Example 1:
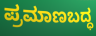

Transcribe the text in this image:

ಪ್ರಮಾಣಬದ್ಧ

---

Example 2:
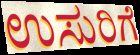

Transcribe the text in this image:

ಉಸುರಿಗೆ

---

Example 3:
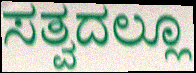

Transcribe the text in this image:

ಸತ್ವದಲ್ಲೂ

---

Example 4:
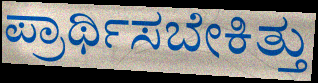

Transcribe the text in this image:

ಪ್ರಾರ್ಥಿಸಬೇಕಿತ್ತು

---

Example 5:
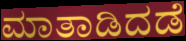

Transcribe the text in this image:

ಮಾತಾಡಿದಡೆ